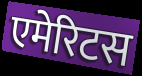
एमेरिटस